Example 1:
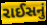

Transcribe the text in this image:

રાઈસનું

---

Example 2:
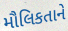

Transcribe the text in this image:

મૌલિકતાને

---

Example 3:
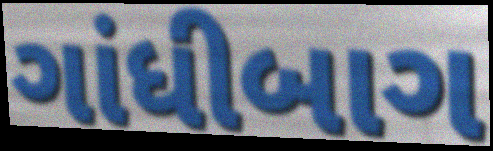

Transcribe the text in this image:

ગાંધીબાગ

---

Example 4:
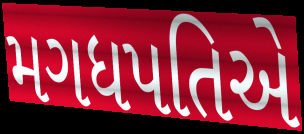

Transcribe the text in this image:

મગધપતિએ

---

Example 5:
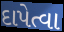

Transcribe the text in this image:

દાપેત્વા